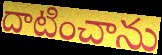
దాటించాను